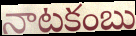
నాటకంబు